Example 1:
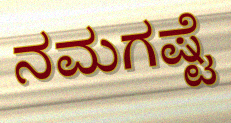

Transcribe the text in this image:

ನಮಗಷ್ಟೆ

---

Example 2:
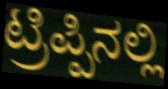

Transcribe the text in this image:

ಟ್ರಿಪ್ಪಿನಲ್ಲಿ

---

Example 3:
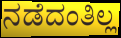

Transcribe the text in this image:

ನಡೆದಂತಿಲ್ಲ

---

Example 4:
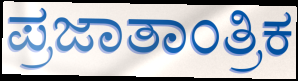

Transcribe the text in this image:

ಪ್ರಜಾತಾಂತ್ರಿಕ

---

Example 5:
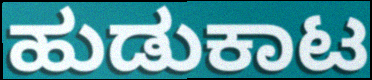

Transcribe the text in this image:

ಹುಡುಕಾಟ